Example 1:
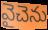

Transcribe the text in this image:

వైచెను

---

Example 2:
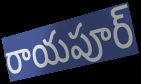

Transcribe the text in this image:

రాయపూర్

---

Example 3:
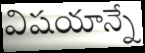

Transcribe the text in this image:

విషయాన్నే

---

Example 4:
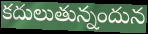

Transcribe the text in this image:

కదులుతున్నందున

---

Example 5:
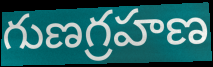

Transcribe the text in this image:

గుణగ్రహణ